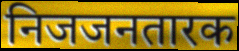
निजजनतारक